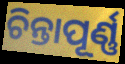
ଚିନ୍ତାପୂର୍ଣ୍ଣ